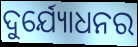
ଦୁର୍ଯ୍ଯୋଧନର